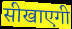
सीखाएगी